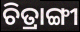
ଚିତ୍ରାଙ୍ଗୀ